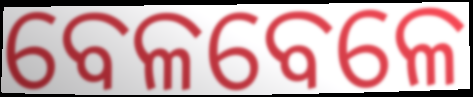
ବେଳବେଳେ